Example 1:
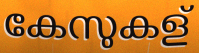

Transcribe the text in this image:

കേസുകള്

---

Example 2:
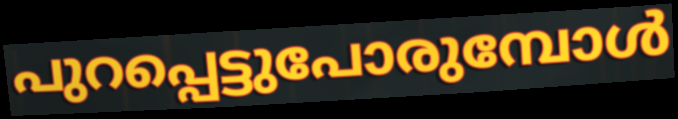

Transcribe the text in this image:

പുറപ്പെട്ടുപോരുമ്പോൾ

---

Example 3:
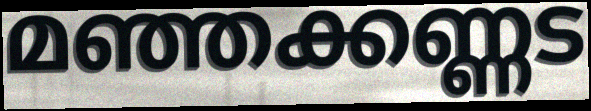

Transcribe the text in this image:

മഞ്ഞക്കണ്ണട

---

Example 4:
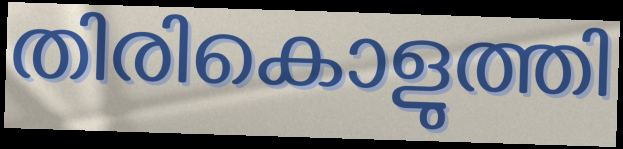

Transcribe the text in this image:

തിരികൊളുത്തി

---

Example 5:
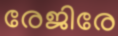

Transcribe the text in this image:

രേജിരേ